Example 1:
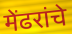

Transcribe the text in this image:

मेंढरांचे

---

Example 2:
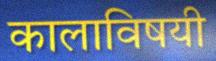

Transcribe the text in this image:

कालाविषयी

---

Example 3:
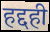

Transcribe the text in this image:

हद्दही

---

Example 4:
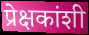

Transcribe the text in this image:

प्रेक्षकांशी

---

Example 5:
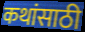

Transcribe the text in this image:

कथांसाठी